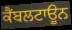
ਕੈਂਬਲਟਾਊਨ